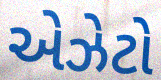
એઝેટો